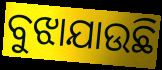
ବୁଝାଯାଉଛି